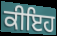
ਕੀਇਹ